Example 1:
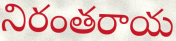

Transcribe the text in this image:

నిరంతరాయ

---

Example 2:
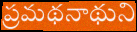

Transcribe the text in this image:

ప్రమథనాథుని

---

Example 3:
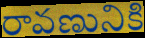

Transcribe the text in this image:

రావణునికి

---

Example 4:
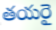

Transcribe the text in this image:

తయరై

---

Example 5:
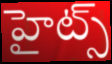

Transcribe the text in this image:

హైట్స్